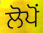
ਲੋਪੋਂ